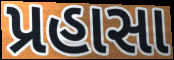
પ્રહાસા